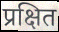
प्रक्षित